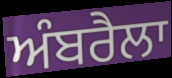
ਅੰਬਰੈਲਾ